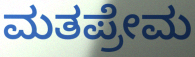
ಮತಪ್ರೇಮ